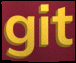
git